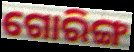
ଗୋରିଙ୍ଗ